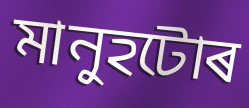
মানুহটোৰ